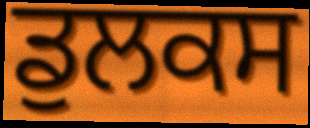
ਡੁਲਕਸ